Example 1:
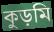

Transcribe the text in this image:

কুড়মি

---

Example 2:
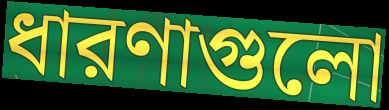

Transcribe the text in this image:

ধারণাগুলো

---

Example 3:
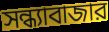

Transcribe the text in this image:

সন্ধ্যাবাজার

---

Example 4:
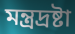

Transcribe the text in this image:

মন্ত্রদ্রষ্টা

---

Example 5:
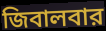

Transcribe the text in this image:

জিবালবার